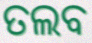
ତଲବ